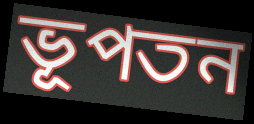
ভূপতন